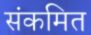
संकमित